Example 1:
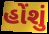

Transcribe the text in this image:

હોંશું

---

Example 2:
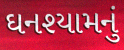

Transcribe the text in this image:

ઘનશ્યામનું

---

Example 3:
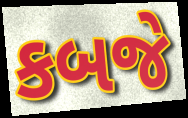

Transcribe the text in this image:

કબજે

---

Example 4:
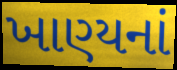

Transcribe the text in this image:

ખાણ્યનાં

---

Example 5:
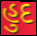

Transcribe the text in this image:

હુદ